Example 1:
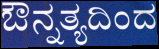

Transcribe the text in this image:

ಔನ್ನತ್ಯದಿಂದ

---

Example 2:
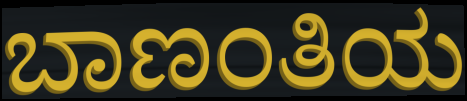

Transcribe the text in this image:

ಬಾಣಂತಿಯ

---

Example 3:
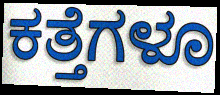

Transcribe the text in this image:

ಕತ್ತೆಗಳೂ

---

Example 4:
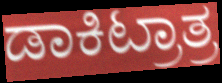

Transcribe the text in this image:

ಡಾಕಿಟ್ರಾತ್ರ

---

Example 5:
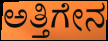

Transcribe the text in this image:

ಅತ್ತಿಗೇನ